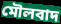
মৌলবাদ